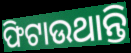
ଫିଟାଉଥାନ୍ତି